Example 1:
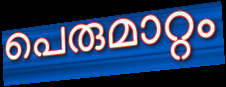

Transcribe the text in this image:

പെരുമാറ്റം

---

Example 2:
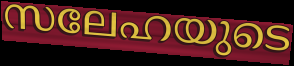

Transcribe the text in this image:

സലേഹയുടെ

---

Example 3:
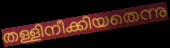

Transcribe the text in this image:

തള്ളിനീക്കിയതെന്നു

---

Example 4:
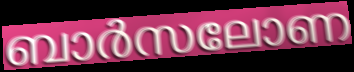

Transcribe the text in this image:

ബാർസലോണ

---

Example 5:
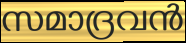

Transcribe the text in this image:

സമാദ്രവൻ